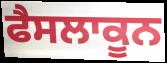
ਫੈਸਲਾਕੂਨ